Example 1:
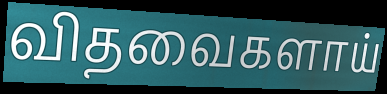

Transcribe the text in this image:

விதவைகளாய்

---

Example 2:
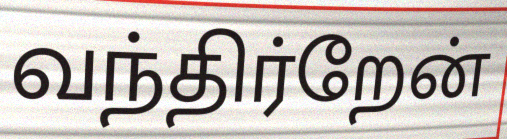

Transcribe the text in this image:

வந்திர்றேன்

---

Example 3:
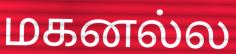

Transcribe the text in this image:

மகனல்ல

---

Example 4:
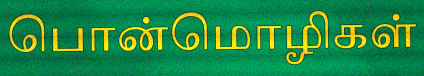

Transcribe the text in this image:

பொன்மொழிகள்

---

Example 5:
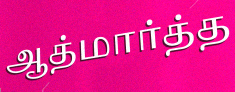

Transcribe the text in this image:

ஆத்மார்த்த